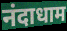
नंदाधाम